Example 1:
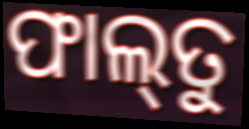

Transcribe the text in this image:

ଫାଲ୍‌ତୁ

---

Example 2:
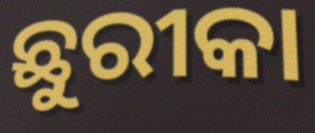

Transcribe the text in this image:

ଛୁରୀକା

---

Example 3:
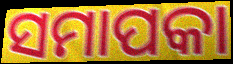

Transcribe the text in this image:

ସମାପକା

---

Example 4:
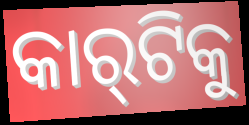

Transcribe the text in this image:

କାର୍‌ଟିକୁ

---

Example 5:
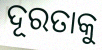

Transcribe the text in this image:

ଦୂରତାକୁ